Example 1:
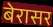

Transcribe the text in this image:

बेरासर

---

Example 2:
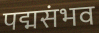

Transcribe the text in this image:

पद्मसंभव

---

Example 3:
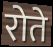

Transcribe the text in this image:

रोते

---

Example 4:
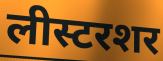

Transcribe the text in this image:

लीस्टरशर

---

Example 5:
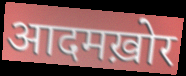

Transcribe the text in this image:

आदमख़ोर